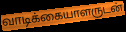
வாடிக்கையாளருடன்